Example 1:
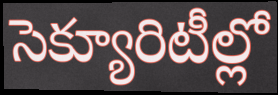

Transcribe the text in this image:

సెక్యూరిటీల్లో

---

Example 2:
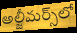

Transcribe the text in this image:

అల్జీమర్స్‌లో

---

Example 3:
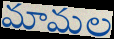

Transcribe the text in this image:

మామల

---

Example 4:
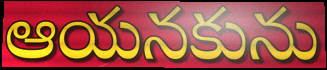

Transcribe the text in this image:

ఆయనకును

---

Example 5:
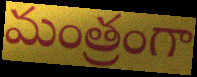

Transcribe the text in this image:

మంత్రంగా